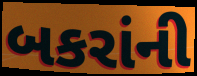
બકરાંની